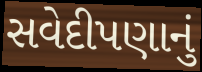
સવેદીપણાનું